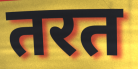
तरत